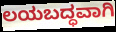
ಲಯಬದ್ಧವಾಗಿ